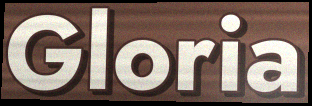
Gloria